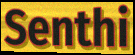
Senthi